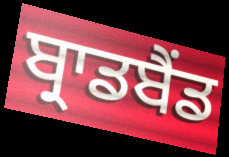
ਬ੍ਰਾਡਬੈਂਡ